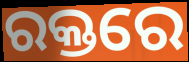
ରକ୍ତରେ